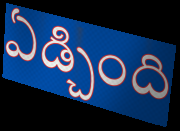
ఏడ్చింది